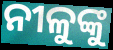
ନୀଳୁଙ୍କୁ